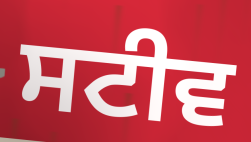
ਸਟੀਵ